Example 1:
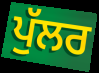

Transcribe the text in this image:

ਪੁੱਲਰ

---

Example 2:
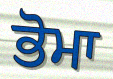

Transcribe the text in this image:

ਭੋਮਾ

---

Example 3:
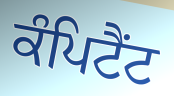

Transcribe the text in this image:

ਕੰਪਿਟੈਂਟ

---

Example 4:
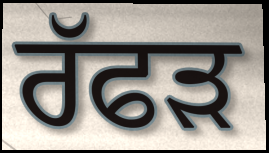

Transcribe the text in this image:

ਰੱਫੜ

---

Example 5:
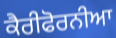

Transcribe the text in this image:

ਕੈਰੀਫੋਰਨੀਆ